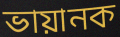
ভায়ানক